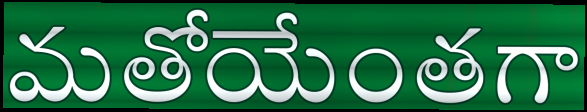
మతోయేంతగా